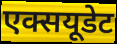
एक्सयूडेट